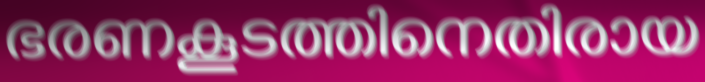
ഭരണകൂടത്തിനെതിരായ